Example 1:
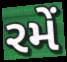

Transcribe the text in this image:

રમેં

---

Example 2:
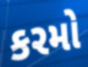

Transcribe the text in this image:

કરમો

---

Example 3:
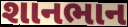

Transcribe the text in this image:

શાનભાન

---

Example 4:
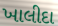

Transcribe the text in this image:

ખાલીદા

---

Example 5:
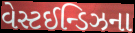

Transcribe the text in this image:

વેસ્ટઈન્ડિઝના